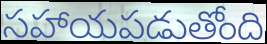
సహాయపడుతోంది